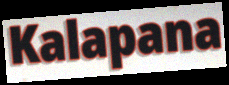
Kalapana